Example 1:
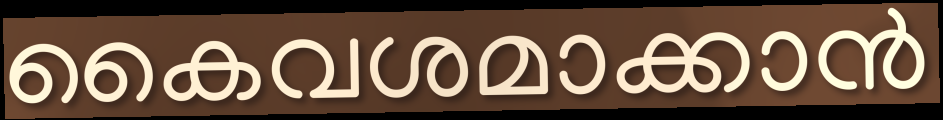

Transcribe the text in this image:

കൈവശമാക്കാൻ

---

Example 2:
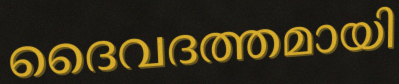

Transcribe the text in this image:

ദൈവദത്തമായി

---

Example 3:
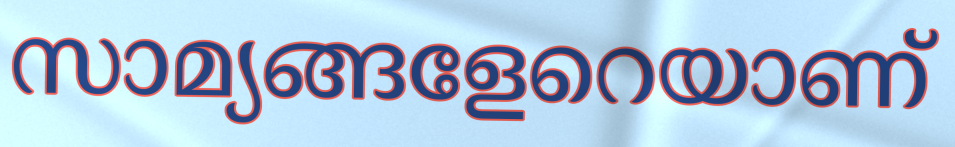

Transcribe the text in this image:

സാമ്യങ്ങളേറെയാണ്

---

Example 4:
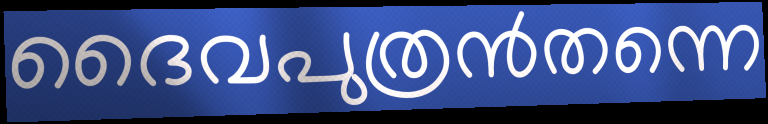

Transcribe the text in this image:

ദൈവപുത്രൻതന്നെ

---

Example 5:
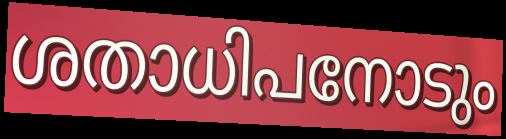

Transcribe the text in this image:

ശതാധിപനോടും